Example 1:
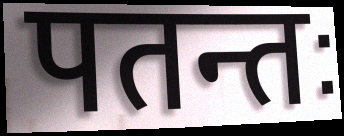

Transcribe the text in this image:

पतन्तः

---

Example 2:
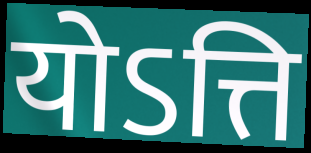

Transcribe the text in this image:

योऽत्ति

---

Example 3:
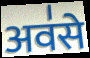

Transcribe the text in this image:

अव॑से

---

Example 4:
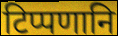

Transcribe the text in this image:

टिप्पणानि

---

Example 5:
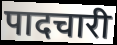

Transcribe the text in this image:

पादचारी